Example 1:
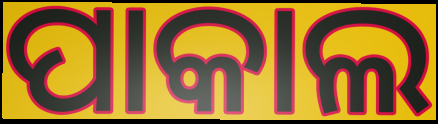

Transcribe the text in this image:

ପାକାଲ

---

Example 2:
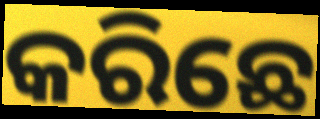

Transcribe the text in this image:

କରିଛେ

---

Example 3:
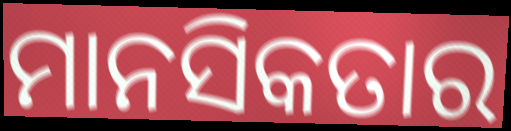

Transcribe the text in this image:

ମାନସିକତାର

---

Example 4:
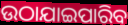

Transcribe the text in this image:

ଉଠାଯାଇପାରିବ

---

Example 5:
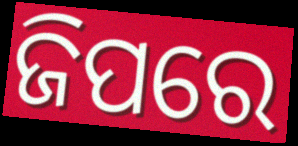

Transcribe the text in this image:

ଜିପରେ